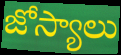
జోస్యాలు